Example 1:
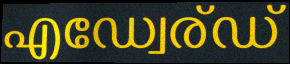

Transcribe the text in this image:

എഡ്വേര്ഡ്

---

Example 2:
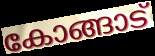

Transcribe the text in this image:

കോങ്ങാട്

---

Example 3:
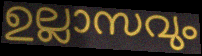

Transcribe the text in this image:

ഉല്ലാസവും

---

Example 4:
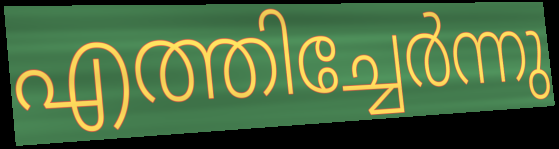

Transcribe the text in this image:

എത്തിച്ചേർന്നു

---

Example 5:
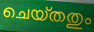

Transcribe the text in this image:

ചെയ്‌തതും